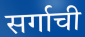
सर्गाची